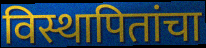
विस्थापितांचा